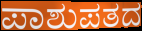
ಪಾಶುಪತದ